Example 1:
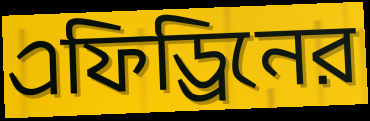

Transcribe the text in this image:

এফিড্রিনের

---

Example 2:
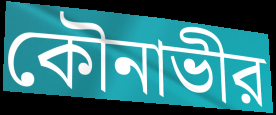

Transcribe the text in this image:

কৌনাভীর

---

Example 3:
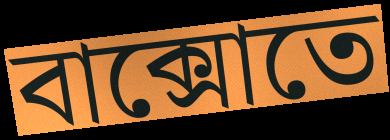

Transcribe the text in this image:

বাক্সোতে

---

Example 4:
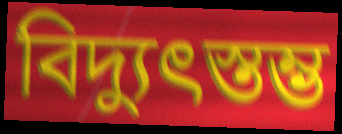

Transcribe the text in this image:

বিদ্যুৎস্তম্ভ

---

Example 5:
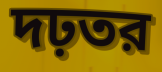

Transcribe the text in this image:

দঢ়তর